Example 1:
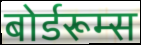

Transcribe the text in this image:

बोर्डरूम्स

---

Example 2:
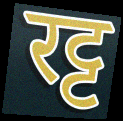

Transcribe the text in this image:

रट्ट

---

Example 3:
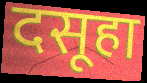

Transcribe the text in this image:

दसूहा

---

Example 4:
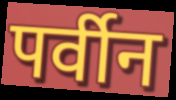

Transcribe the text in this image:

पर्वीन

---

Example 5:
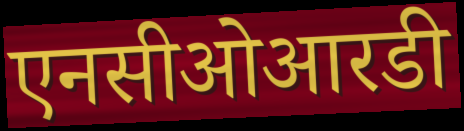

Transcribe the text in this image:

एनसीओआरडी